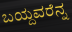
ಬಯ್ದವರೆನ್ನ